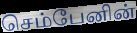
செம்பேனின்